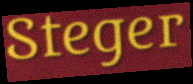
Steger